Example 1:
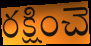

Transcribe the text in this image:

రక్షించె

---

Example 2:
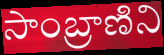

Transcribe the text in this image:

సాంబ్రాణిని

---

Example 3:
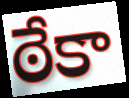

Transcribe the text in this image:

ఠేకా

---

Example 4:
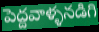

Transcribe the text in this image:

పెద్దవాళ్ళనడిగి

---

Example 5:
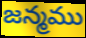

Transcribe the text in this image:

జన్మము